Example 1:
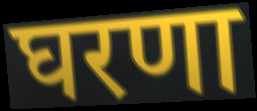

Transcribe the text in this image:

घरणा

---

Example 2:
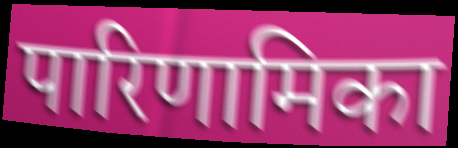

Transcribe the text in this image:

पारिणामिका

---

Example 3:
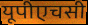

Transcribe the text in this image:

यूपीएचसी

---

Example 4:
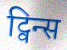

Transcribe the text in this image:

ट्विन्स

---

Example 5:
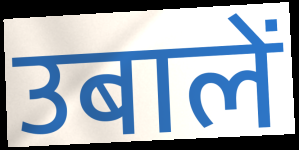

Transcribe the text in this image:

उबालें